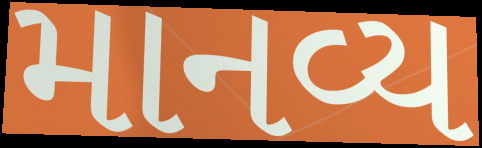
માનવ્ય